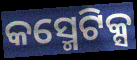
କସ୍ମେଟିକ୍ସ